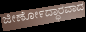
ಜೀರ್ಣೋದ್ಧಾರವಾದ